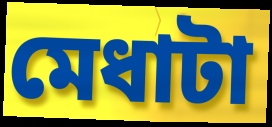
মেধাটা